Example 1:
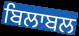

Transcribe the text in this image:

ਬਿਲਾਬਲ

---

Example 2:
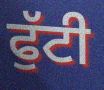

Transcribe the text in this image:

ਫੁੱਟੀ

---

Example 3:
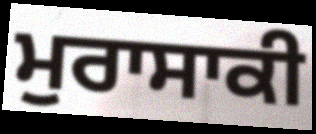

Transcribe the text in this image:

ਮੁਰਾਸਾਕੀ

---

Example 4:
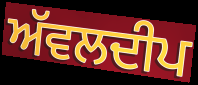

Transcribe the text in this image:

ਅੱਵਲਦੀਪ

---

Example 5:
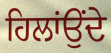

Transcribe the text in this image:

ਹਿਲਾਂਉਂਦੇ